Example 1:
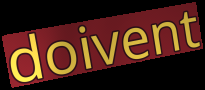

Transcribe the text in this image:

doivent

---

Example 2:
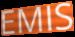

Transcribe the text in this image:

EMIS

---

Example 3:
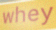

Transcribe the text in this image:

whey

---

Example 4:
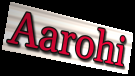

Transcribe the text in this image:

Aarohi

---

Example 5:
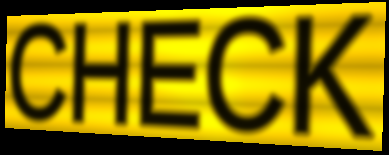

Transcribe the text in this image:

CHECK